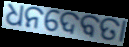
ଧନଦେବତା